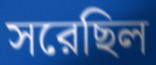
সরেছিল